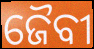
ଜୈବୀ